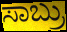
ಸಾಬ್ರು